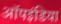
ऑपइंडिया